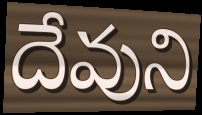
దేవుని